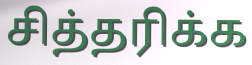
சித்தரிக்க